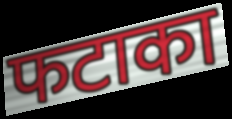
फटाका